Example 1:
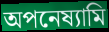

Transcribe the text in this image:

অপনেষ্যামি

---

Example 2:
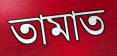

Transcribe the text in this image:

তামাত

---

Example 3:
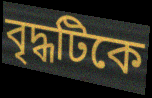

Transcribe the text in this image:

বৃদ্ধটিকে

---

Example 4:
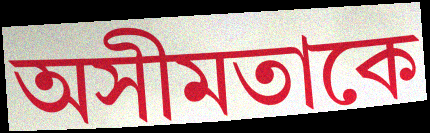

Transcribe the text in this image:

অসীমতাকে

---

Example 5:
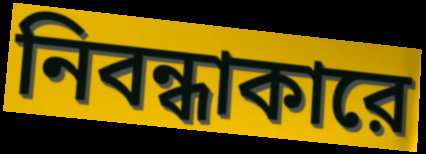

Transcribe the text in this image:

নিবন্ধাকারে